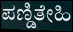
ಪಣ್ಡಿತೇಹಿ